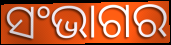
ସଂଭାଗର